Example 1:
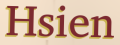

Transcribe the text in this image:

Hsien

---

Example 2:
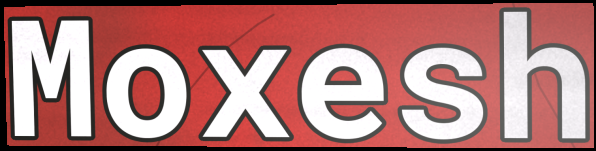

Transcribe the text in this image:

Moxesh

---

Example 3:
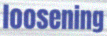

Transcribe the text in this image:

loosening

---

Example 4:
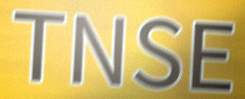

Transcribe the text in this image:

TNSE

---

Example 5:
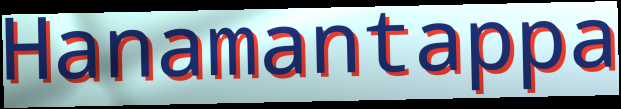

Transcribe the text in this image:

Hanamantappa